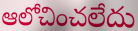
ఆలోచించలేదు